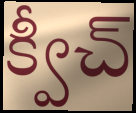
క్వీచ్